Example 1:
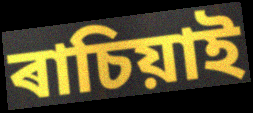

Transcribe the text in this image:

ৰাচিয়াই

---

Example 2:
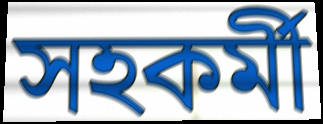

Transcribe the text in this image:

সহকৰ্মী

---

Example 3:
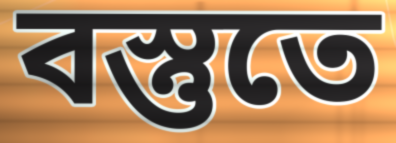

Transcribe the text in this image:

বস্তুতে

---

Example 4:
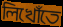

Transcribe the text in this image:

লিখোঁতে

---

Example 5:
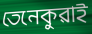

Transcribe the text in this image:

তেনেকুৱাই